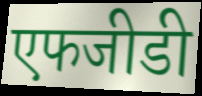
एफजीडी